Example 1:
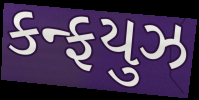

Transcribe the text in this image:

કન્ફયુઝ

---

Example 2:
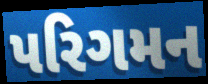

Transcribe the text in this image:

પરિગમન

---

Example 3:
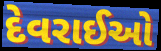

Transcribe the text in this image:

દેવરાઈઓ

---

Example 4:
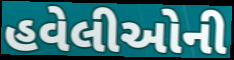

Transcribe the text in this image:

હવેલીઓની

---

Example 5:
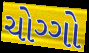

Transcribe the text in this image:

ચોગ્ગો